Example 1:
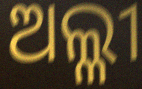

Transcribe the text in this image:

ଅଲ୍ଳୀ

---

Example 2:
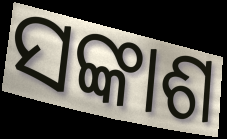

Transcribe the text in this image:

ସଙ୍କାଶ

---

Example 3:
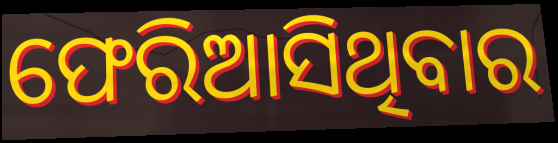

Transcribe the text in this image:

ଫେରିଆସିଥିବାର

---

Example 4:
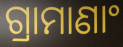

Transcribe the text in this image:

ଗ୍ରାମାଣାଂ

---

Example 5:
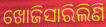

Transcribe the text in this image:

ଖୋଜିସାରିଲିଣି